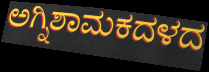
ಅಗ್ನಿಶಾಮಕದಳದ